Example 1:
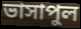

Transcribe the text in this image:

ভাসাপুল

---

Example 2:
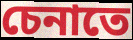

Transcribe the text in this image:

চেনাতে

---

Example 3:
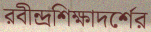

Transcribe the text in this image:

রবীন্দ্রশিক্ষাদর্শের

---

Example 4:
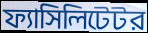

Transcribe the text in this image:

ফ্যাসিলিটেটর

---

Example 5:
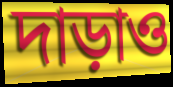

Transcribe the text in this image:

দাড়াও